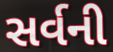
સર્વની